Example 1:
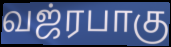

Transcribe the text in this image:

வஜ்ரபாகு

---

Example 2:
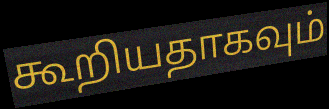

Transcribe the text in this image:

கூறியதாகவும்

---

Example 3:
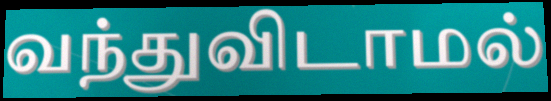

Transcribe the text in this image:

வந்துவிடாமல்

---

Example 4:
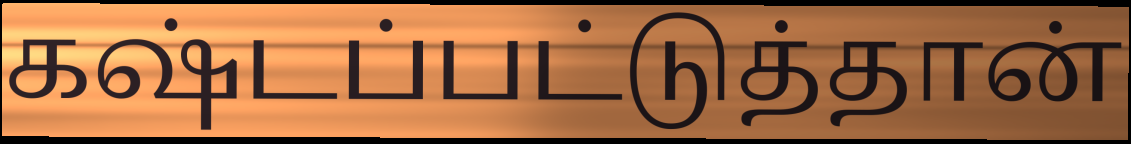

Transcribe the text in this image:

கஷ்டப்பட்டுத்தான்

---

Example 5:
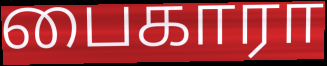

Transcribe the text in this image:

பைகாரா